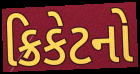
ક્રિકેટનો